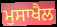
ਮੁਸਾਖੈਲ